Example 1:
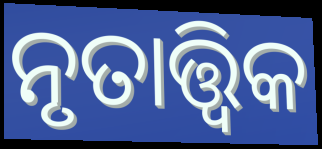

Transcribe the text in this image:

ନୃତାତ୍ତ୍ବିକ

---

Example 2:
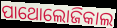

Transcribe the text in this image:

ପାଥୋଲୋଜିକାଲ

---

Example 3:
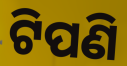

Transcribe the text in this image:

ଟିପଣି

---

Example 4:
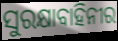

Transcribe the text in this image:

ସୁରକ୍ଷାବାହିନୀର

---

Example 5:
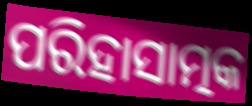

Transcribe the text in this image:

ପରିହାସାତ୍ମକ